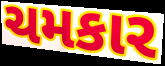
ચમકાર